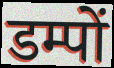
डम्पों